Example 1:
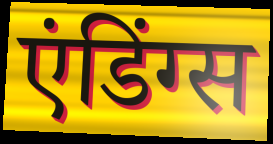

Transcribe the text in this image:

एंडिंग्स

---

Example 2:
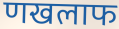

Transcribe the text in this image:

णखलाफ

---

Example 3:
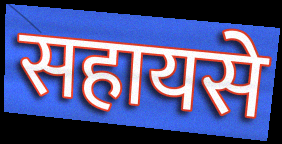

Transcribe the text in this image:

सहायसे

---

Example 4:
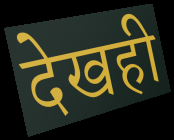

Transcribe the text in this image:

देखही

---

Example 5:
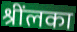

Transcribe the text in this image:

श्रींलका